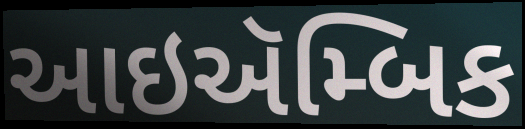
આઇઍમ્બિક